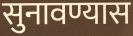
सुनावण्यास